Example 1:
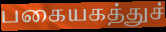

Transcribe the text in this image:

பகையகத்துச்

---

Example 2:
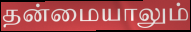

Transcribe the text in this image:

தன்மையாலும்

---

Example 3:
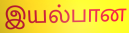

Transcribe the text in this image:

இயல்பான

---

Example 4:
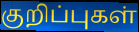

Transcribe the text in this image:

குறிப்புகள்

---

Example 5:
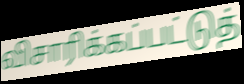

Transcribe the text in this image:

விசாரிக்கப்பட்டுத்